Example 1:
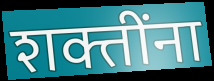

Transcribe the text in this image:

शक्तींना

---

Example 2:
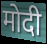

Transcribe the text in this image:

मोदी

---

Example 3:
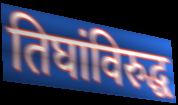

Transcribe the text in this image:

तिघांविरुद्ध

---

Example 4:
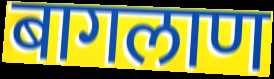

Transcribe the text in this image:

बागलाण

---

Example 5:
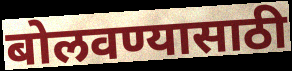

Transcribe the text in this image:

बोलवण्यासाठी